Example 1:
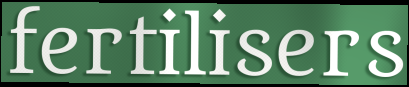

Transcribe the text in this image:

fertilisers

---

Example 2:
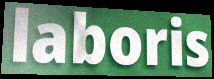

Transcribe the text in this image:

laboris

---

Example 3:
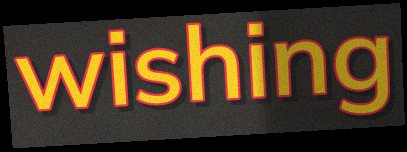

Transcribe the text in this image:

wishing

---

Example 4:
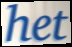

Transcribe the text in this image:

het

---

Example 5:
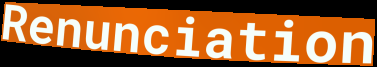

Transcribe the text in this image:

Renunciation